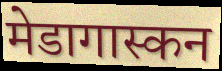
मेडागास्कन